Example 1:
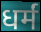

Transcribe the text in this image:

धर्म॑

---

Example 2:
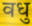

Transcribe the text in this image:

वधु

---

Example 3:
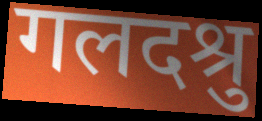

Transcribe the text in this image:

गलदश्रु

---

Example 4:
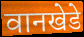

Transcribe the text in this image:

वानखेडे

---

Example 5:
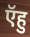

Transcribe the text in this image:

ऍहु